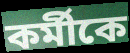
কর্মীকে